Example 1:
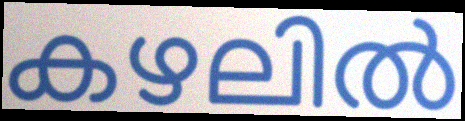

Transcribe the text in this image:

കഴലിൽ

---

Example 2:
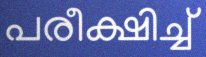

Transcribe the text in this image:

പരീക്ഷിച്ച്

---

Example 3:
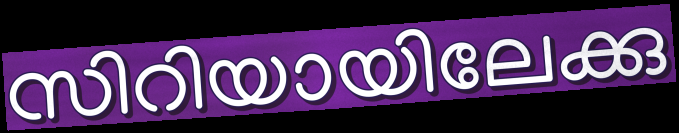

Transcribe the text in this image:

സിറിയായിലേക്കു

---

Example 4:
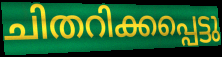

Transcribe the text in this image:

ചിതറിക്കപ്പെട്ടു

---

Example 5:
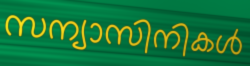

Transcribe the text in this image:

സന്യാസിനികൾ